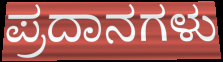
ಪ್ರದಾನಗಳು